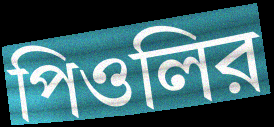
পিওলির